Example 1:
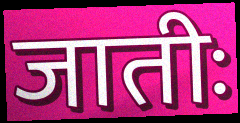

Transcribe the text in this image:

जातीः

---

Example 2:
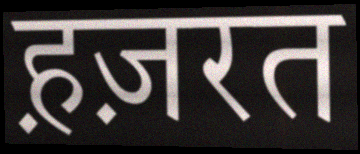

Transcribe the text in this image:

ह़ज़रत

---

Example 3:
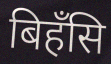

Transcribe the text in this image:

बिहँसि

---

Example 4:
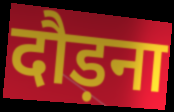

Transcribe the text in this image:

दौड़ना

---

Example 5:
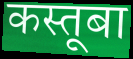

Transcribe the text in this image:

कस्तूबा